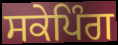
ਸਕੇਪਿੰਗ